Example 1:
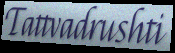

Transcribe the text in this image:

Tattvadrushti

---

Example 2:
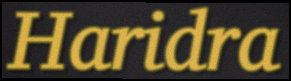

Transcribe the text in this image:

Haridra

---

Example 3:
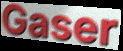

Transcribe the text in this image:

Gaser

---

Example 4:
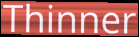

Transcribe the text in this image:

Thinner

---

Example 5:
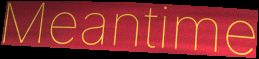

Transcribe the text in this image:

Meantime